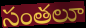
సంతలూ